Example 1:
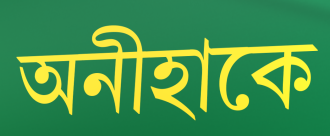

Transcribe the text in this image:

অনীহাকে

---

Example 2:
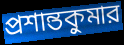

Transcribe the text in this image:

প্রশান্তকুমার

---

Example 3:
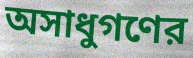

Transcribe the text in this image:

অসাধুগণের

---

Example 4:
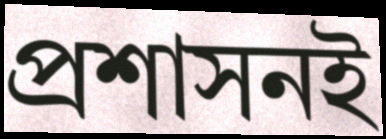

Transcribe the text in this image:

প্রশাসনই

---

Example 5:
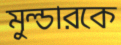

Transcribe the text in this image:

মুল্ডারকে